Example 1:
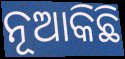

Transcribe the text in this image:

ନୂଆକିଛି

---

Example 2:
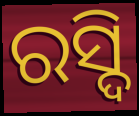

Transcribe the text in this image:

ରସ୍ଦି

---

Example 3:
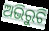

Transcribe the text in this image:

ଅଭିରୁଚି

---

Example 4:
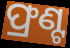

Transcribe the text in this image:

ଫ୍ରଣ୍ଟ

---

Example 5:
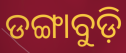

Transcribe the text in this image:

ଡଙ୍ଗାବୁଡ଼ି